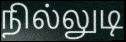
நில்லுடி